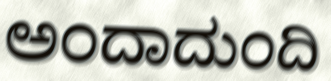
ಅಂದಾದುಂದಿ